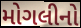
મોગલીનો